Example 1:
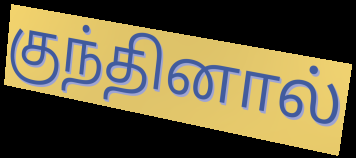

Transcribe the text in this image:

குந்தினால்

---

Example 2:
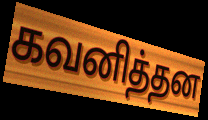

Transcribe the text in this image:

கவனித்தன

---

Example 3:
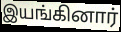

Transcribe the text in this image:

இயங்கினார்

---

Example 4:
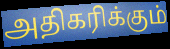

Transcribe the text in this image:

அதிகரிக்கும்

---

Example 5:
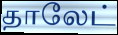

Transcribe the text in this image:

தாலேட்